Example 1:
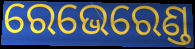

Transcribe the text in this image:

ରେଭେରେଣ୍ଡ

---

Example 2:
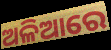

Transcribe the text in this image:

ଅଳିଆରେ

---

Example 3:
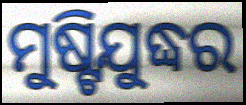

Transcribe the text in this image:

ମୁଷ୍ଟିଯୁଦ୍ଧର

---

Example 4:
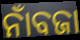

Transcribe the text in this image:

ନାଁବଜା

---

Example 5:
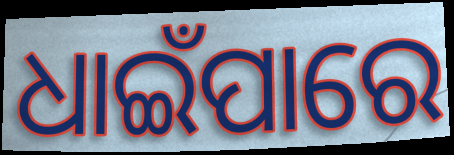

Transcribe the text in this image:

ଧାଇଁପାରେ